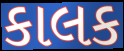
કાલક